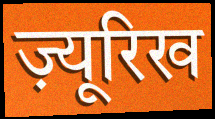
ज़्यूरिख